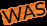
WAS